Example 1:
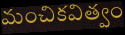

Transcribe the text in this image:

మంచికవిత్వం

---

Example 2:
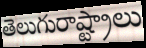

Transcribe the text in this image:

తెలుగురాష్ట్రాలు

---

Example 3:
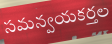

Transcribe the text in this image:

సమన్వయకర్తల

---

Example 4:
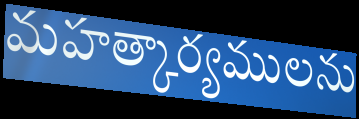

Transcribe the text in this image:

మహత్కార్యములను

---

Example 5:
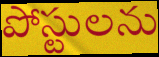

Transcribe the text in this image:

పోస్టులను